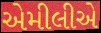
એમીલીએ